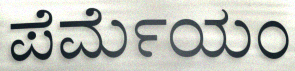
ಪೆರ್ಮೆಯಂ